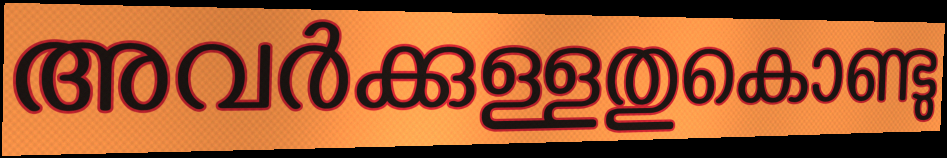
അവർക്കുള്ളതുകൊണ്ടു